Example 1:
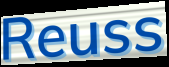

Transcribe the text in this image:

Reuss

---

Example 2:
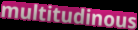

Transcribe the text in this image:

multitudinous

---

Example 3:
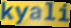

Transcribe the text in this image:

kyali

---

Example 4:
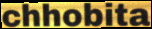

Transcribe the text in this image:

chhobita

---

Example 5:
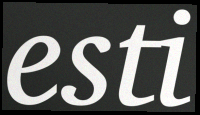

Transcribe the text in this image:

esti